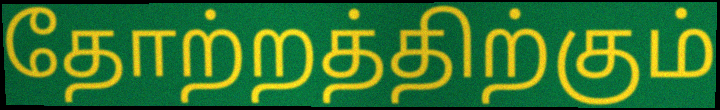
தோற்றத்திற்கும்